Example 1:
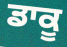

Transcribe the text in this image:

ਡਾਕੂ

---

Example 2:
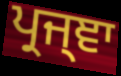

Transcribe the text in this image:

ਪ੍ਰਜ੍ਞਾ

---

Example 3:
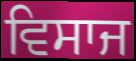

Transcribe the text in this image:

ਵਿਸਾਜ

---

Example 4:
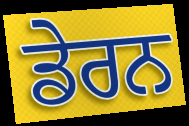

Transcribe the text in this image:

ਡੇਰਨ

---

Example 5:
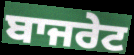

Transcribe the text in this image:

ਬਾਜਰੇਟ